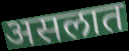
असलात